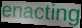
enacting